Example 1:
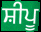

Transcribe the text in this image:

ਸ਼ੀਪੂ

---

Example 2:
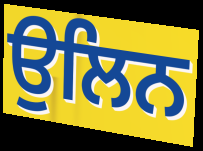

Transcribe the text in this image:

ਉਲਿਨ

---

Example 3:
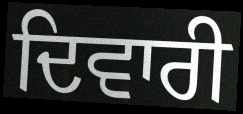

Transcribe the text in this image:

ਦਿਵਾਰੀ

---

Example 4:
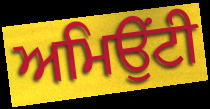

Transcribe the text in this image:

ਅਮਿਉਂਟੀ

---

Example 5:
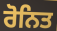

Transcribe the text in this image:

ਰੋਨਿਤ